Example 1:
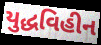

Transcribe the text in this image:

યુદ્ધવિહીન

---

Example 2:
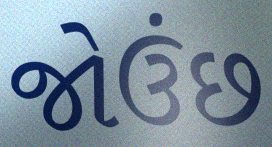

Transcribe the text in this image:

જોઉંછ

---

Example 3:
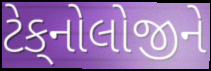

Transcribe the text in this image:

ટેક્‌નોલોજીને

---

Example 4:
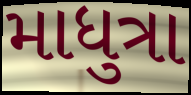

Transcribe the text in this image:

માધુત્રા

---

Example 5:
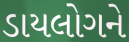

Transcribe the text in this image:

ડાયલોગને